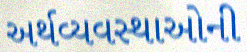
અર્થવ્યવસ્થાઓની